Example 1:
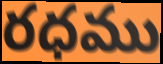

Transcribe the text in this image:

రధము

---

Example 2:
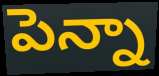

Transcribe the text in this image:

పెన్నా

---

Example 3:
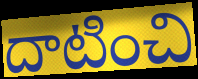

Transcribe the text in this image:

దాటించి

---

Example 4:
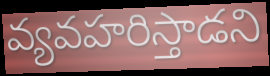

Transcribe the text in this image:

వ్యవహరిస్తాడని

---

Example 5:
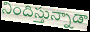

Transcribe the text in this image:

నిందిస్తున్నాడా